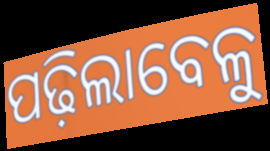
ପଢ଼ିଲାବେଳୁ